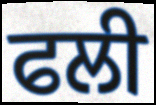
ਫਲੀ